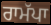
ਰਾਮੱਪਾ